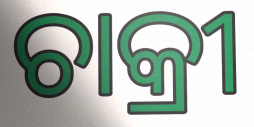
ଚାକ୍ରୀ